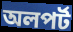
অলপর্ট